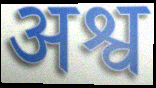
अश्व